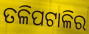
ତଳିପଟାଳିର